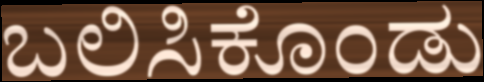
ಬಲಿಸಿಕೊಂಡು